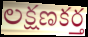
లక్షణకర్త